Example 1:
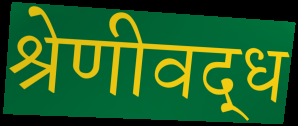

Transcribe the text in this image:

श्रेणीवद्ध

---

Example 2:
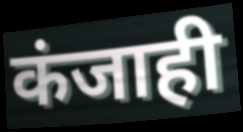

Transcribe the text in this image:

कंजाही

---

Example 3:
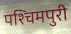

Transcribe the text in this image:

पश्चिमपुरी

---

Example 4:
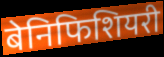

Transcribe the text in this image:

बेनिफिशियरी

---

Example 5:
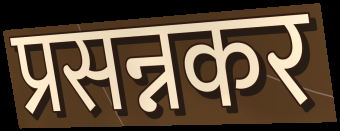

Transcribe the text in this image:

प्रसन्नकर